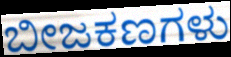
ಬೀಜಕಣಗಳು